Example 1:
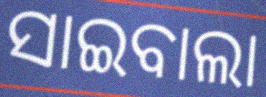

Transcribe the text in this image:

ସାଇବାଲା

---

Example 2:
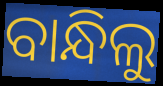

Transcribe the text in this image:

ବାନ୍ଧିଲୁ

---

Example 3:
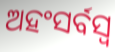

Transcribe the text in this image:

ଅହଂସର୍ବସ୍ୱ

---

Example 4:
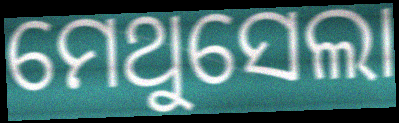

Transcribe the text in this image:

ମେଥୁସେଲା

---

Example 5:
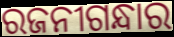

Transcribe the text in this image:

ରଜନୀଗନ୍ଧାର